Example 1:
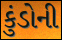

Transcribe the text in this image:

કુંડોની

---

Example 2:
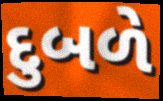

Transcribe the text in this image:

દુબળે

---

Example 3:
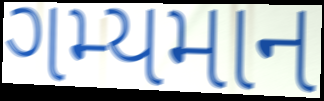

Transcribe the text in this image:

ગમ્યમાન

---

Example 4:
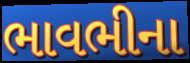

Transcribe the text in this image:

ભાવભીના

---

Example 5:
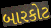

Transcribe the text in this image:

બારકોટ